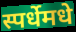
स्पर्धेमधे